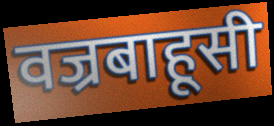
वज्रबाहूसी